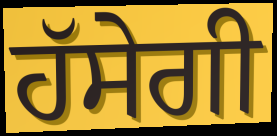
ਹੱਸੇਗੀ